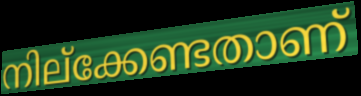
നില്ക്കേണ്ടതാണ്